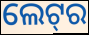
ଲେଟ୍‌ର